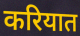
करियात